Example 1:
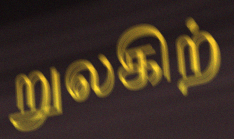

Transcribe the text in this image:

றுலகிற்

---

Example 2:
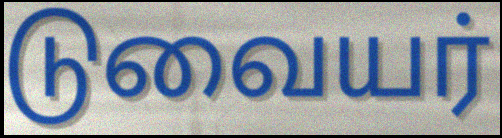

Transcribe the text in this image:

டுவையர்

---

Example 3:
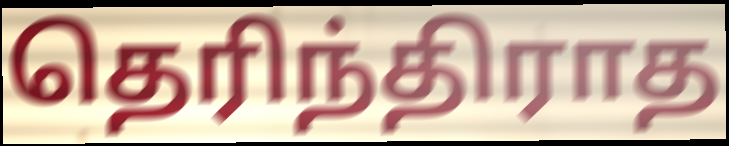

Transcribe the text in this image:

தெரிந்திராத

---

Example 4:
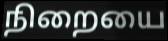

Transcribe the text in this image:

நிறையை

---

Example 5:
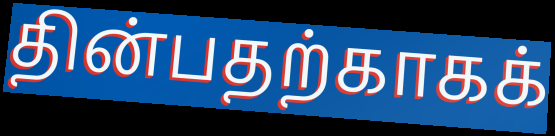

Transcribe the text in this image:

தின்பதற்காகக்